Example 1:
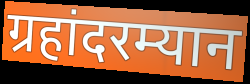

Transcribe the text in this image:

ग्रहांदरम्यान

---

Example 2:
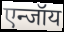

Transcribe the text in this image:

एन्जॉय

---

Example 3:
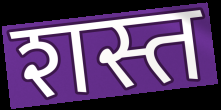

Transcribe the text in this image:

शस्त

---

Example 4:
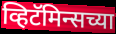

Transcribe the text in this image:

व्हिटॅमिन्सच्या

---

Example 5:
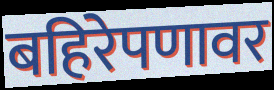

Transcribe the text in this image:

बहिरेपणावर